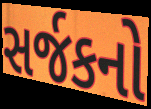
સર્જકનો